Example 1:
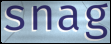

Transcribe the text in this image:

snag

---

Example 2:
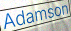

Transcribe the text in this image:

Adamson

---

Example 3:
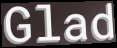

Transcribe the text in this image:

Glad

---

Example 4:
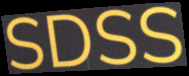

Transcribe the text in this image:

SDSS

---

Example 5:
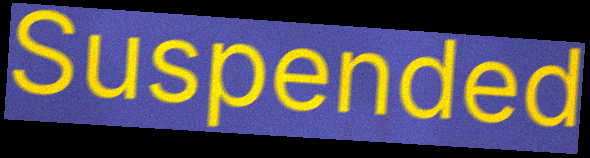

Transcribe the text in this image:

Suspended